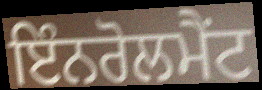
ਇੰਨਰੋਲਮੈਂਟ